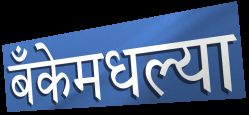
बँकेमधल्या